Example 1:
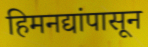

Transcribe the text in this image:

हिमनद्यांपासून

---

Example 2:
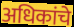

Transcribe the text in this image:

अधिकांचे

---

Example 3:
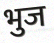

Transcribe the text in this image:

भुज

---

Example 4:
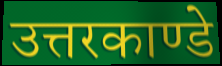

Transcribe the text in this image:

उत्तरकाण्डे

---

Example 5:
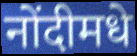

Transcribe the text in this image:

नोंदीमधे